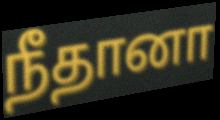
நீதானா